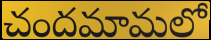
చందమామలో